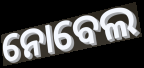
ନୋବେଲ